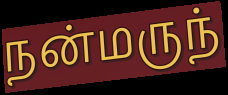
நன்மருந்